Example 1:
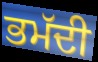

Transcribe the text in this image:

ਭਮੱਦੀ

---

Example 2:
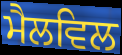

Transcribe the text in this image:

ਮੈਲਵਿਲ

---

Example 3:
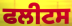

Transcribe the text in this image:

ਫਲੀਟਸ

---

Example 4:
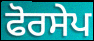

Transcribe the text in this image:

ਫੋਰਸੇਪ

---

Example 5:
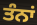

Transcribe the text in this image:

ਤੰਨਾਂ